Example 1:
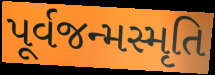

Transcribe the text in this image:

પૂર્વજન્મસ્મૃતિ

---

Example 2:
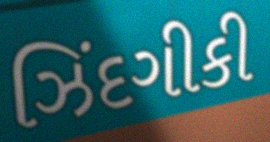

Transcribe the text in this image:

ઝિંદગીકી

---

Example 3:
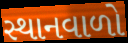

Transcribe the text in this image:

સ્થાનવાળો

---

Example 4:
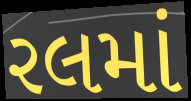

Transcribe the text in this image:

રલમાં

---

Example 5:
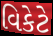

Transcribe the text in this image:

વિકેટે